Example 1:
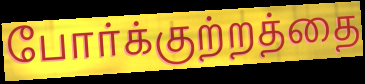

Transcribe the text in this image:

போர்க்குற்றத்தை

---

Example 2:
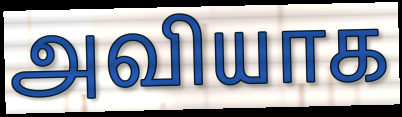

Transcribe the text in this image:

அவியாக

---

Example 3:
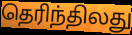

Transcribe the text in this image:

தெரிந்திலது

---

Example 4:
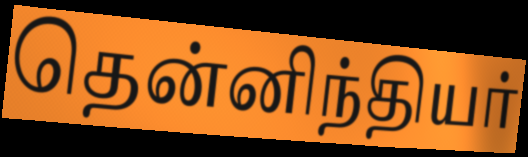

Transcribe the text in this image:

தென்னிந்தியர்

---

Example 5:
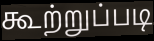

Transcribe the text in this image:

கூற்றுப்படி